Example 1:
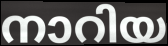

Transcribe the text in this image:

നാറിയ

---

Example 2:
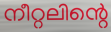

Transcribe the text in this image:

നീറ്റലിന്റെ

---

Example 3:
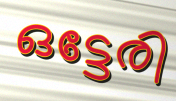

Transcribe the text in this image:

ഒട്ടേരി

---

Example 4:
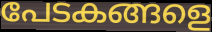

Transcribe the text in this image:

പേടകങ്ങളെ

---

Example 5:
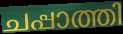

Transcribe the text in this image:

ചപ്പാത്തി